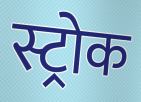
स्ट्रोक